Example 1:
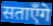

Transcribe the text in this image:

सताएँगे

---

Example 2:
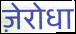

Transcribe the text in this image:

ज़ेरोधा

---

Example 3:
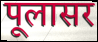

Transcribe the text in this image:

पूलासर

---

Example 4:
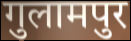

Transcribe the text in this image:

गुलामपुर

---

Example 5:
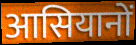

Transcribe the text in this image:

आसियानों